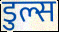
डुल्स